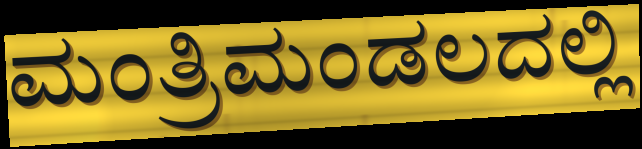
ಮಂತ್ರಿಮಂಡಲದಲ್ಲಿ